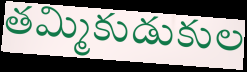
తమ్మికుడుకుల